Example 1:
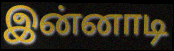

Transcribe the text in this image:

இன்னாடி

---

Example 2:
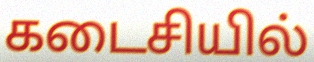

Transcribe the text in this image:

கடைசியில்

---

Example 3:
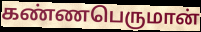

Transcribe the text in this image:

கண்ணபெருமான்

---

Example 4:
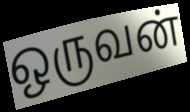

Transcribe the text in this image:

ஒருவன்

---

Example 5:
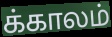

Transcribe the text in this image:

க்காலம்